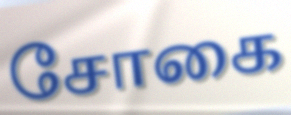
சோகை